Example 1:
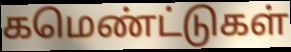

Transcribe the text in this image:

கமெண்ட்டுகள்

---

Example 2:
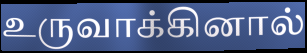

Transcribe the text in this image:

உருவாக்கினால்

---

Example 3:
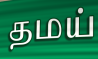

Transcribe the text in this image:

தமய்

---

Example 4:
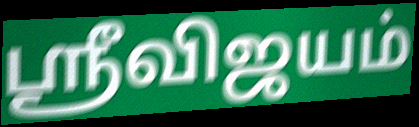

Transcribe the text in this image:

ஸ்ரீவிஜயம்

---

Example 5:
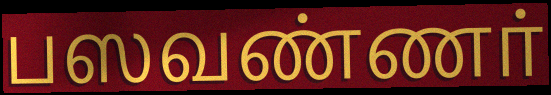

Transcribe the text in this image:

பஸவண்ணர்